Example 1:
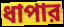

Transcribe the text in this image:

ধাপার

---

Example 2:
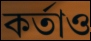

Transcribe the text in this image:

কর্তাও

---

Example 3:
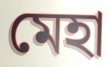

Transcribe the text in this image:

মেহা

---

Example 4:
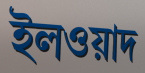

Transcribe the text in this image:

ইলওয়াদ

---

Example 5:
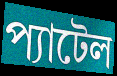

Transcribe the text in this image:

প্যাটেল